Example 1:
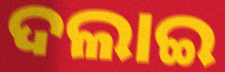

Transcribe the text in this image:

ଦଲାଇ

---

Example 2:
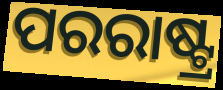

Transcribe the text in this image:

ପରରାଷ୍ଟ୍ର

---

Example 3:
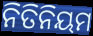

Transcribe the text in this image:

ନିତିନିୟମ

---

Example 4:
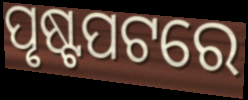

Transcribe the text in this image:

ପୃଷ୍ଟପଟରେ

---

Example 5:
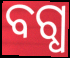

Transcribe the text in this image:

ବଗ୍ଧ